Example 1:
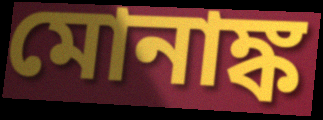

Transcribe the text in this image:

মোনাঙ্ক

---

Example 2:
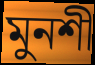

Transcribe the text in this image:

মুনশী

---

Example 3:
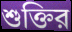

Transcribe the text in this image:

শুক্তির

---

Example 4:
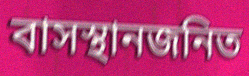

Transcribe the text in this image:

বাসস্থানজনিত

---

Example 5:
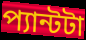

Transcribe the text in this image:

প্যান্টটা